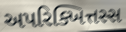
અપરિક્ખિત્તસ્સ